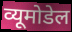
व्यूमोडेल